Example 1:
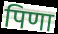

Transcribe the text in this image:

पिणा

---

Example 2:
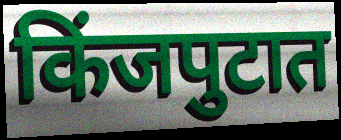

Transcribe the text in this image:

किंजपुटात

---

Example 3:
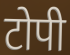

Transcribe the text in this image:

टोपी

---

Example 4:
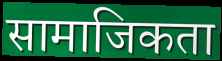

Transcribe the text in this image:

सामाजिकता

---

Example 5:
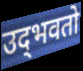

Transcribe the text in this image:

उद्‌भवतो